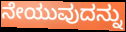
ನೇಯುವುದನ್ನು